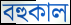
বহুকাল